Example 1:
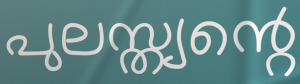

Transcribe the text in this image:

പുലസ്ത്യന്റെ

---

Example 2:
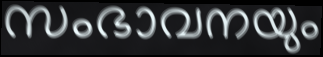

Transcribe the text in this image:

സംഭാവനയും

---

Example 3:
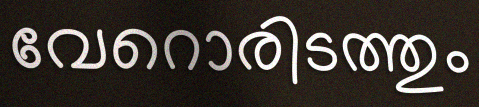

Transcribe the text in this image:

വേറൊരിടത്തും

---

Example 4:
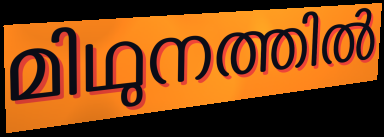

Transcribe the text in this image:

മിഥുനത്തിൽ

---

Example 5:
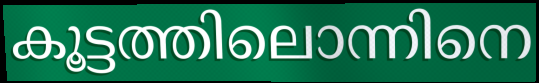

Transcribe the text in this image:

കൂട്ടത്തിലൊന്നിനെ